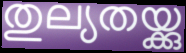
തുല്യതയ്ക്കു